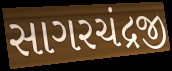
સાગરચંદ્રજી